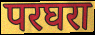
परघरा